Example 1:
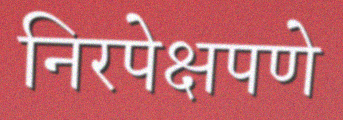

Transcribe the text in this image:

निरपेक्षपणे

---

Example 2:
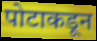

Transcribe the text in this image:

पोटाकडून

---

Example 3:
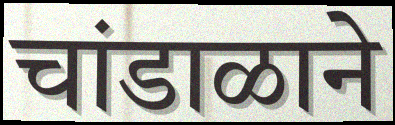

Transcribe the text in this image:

चांडाळाने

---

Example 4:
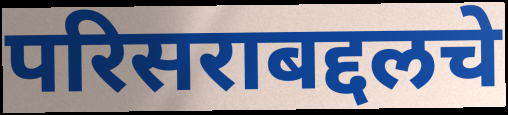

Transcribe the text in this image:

परिसराबद्दलचे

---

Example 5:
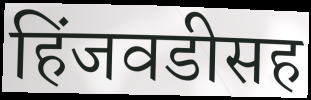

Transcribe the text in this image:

हिंजवडीसह